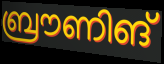
ബ്രൗണിങ്